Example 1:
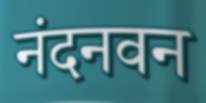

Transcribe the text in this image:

नंदनवन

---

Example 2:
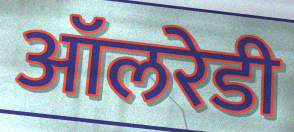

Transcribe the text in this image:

ऑलरेडी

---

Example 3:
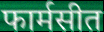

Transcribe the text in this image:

फार्मसीत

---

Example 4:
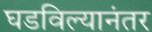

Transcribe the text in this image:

घडविल्यानंतर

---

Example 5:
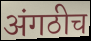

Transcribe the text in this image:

अंगठीच